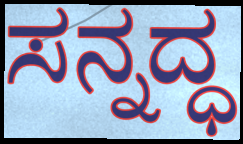
ಸನ್ನದ್ಧ